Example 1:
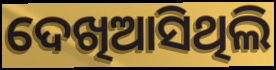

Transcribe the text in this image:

ଦେଖିଆସିଥିଲି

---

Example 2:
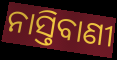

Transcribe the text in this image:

ନାସ୍ତିବାଣୀ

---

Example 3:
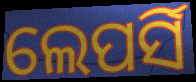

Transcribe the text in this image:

ଲେପର୍ସି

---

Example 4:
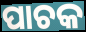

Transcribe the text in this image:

ପାଚକ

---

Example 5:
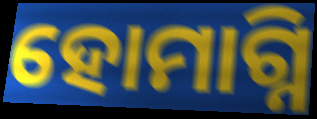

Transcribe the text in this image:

ହୋମାଗ୍ନି